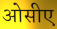
ओसीए